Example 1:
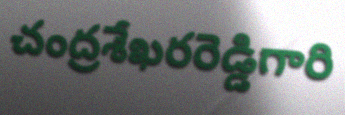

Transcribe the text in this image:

చంద్రశేఖరరెడ్డిగారి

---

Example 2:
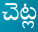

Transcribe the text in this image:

చెట్ల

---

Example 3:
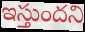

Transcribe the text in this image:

ఇస్తుందని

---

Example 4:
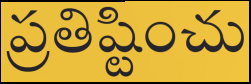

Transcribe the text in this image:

ప్రతిష్టించు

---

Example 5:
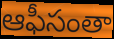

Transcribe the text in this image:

ఆఫీసంతా